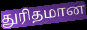
துரிதமான